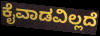
ಕೈವಾಡವಿಲ್ಲದೆ